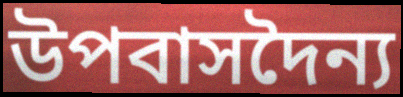
উপবাসদৈন্য